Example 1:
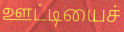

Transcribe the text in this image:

ஊட்டியைச்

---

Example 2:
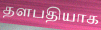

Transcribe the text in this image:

தளபதியாக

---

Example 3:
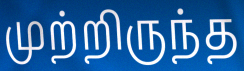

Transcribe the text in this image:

முற்றிருந்த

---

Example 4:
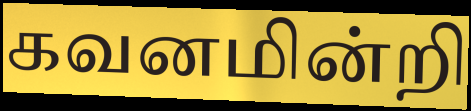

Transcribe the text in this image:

கவனமின்றி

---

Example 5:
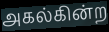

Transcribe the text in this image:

அகல்கின்ற